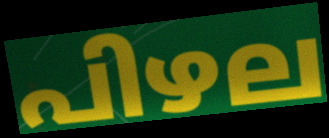
പിഴല